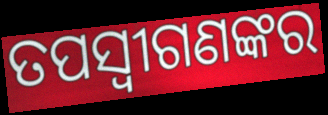
ତପସ୍ୱୀଗଣଙ୍କର